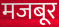
मजबूर